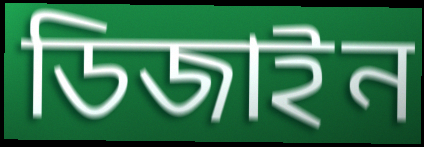
ডিজাইন